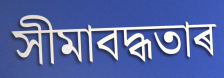
সীমাবদ্ধতাৰ